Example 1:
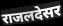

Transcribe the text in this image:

राजलदेसर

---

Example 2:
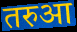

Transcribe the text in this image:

तरुआ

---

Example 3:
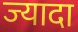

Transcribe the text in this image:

ज्‍यादा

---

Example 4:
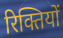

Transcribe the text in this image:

रिक्तियों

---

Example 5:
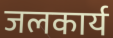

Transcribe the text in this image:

जलकार्य